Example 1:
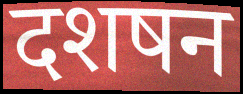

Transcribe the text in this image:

दशषन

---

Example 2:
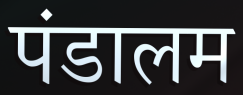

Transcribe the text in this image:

पंडालम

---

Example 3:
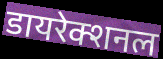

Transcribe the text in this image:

डायरेक्शनल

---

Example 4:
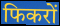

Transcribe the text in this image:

फिकरों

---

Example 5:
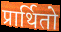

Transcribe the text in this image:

प्रार्थितो